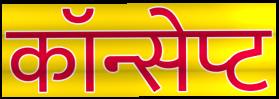
कॉन्‍सेप्‍ट